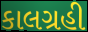
કાલગ્રહી